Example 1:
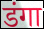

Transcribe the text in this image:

डंगा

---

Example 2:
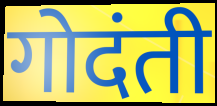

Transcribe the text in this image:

गोदंती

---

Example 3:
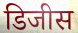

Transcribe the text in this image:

डिजीस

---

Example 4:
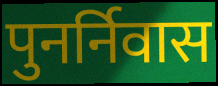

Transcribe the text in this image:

पुनर्निवास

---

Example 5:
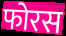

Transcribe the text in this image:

फोरस